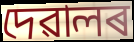
দেৱালৰ